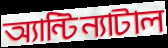
অ্যান্টিন্যাটাল